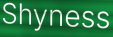
Shyness